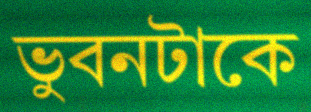
ভুবনটাকে